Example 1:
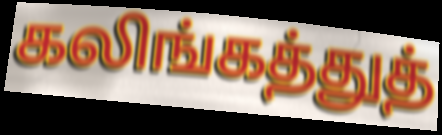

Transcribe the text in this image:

கலிங்கத்துத்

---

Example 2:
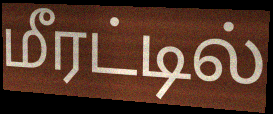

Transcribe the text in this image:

மீரட்டில்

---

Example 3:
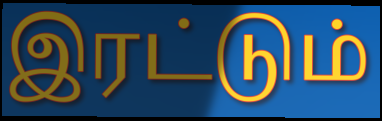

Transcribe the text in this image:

இரட்டும்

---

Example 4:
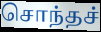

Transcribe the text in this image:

சொந்தச்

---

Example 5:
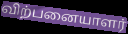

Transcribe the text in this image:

விற்பனையாளர்